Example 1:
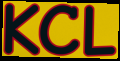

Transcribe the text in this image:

KCL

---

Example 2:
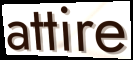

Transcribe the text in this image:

attire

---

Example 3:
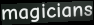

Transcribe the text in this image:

magicians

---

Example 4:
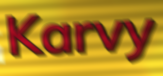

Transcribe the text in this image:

Karvy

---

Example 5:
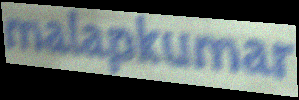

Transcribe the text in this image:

malapkumar